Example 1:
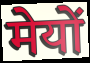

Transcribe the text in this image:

मेयों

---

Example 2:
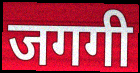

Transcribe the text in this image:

जगगी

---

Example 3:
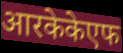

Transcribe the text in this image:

आरकेकेएफ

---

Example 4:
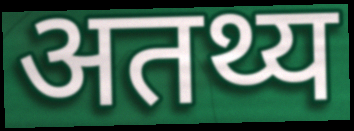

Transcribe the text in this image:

अतथ्य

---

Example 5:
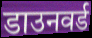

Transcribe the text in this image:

डाउनवर्ड